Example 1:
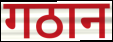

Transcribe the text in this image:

गठान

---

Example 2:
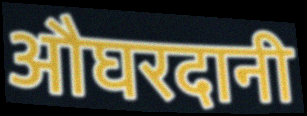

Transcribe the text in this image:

औघरदानी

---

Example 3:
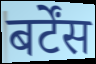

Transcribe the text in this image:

बर्टेंस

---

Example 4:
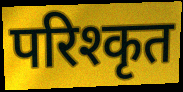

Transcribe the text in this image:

परिश्कृत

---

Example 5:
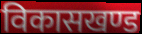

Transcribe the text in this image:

विकासखण्‍ड